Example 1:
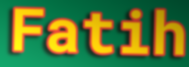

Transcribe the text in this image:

Fatih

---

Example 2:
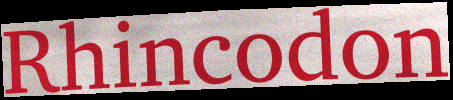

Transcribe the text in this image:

Rhincodon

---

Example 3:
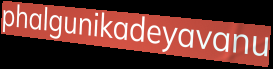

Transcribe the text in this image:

phalgunikadeyavanu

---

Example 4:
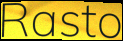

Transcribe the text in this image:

Rasto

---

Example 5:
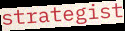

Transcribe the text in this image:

strategist